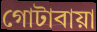
গোটাবায়া